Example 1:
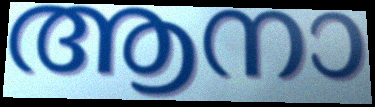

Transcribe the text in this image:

ആനാ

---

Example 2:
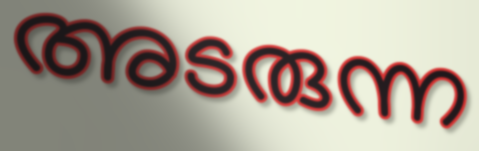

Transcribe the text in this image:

അടരുന്ന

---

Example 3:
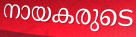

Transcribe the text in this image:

നായകരുടെ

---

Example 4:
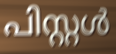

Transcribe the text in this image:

പിസ്റ്റൾ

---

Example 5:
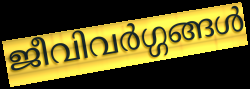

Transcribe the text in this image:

ജീവിവർഗ്ഗങ്ങൾ